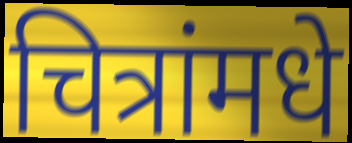
चित्रांमधे